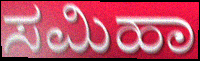
ಸಮಿಹಾ